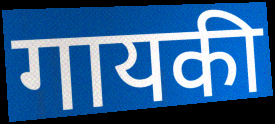
गायकी